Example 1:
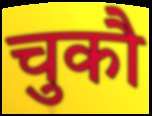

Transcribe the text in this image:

चुकौ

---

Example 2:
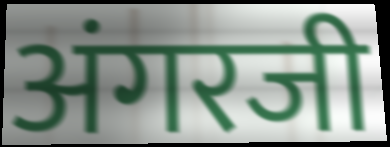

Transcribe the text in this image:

अंगरजी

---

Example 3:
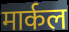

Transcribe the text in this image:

मार्कल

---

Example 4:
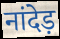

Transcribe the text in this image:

नांदेड़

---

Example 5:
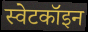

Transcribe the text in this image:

स्वेटकॉइन